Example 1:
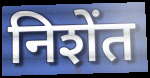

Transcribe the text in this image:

निशेंत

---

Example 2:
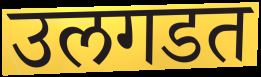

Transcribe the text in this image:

उलगडत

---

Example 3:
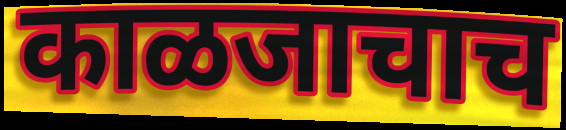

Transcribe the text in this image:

काळजाचाच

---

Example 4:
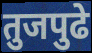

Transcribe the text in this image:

तुजपुढे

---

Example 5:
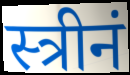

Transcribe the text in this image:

स्त्रीनं